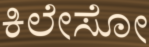
ಕಿಲೇಸೋ